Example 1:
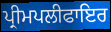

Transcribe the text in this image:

ਪ੍ਰੀਮਪਲੀਫਾਇਰ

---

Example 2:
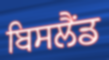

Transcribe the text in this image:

ਬਿਸਲੈਂਡ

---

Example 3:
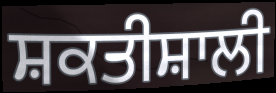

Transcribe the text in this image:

ਸ਼ਕਤੀਸ਼ਾਲੀ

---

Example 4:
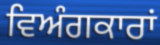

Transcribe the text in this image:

ਵਿਅੰਗਕਾਰਾਂ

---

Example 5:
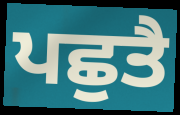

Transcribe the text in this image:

ਪਛੁਤੈ